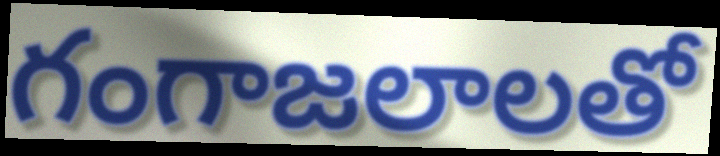
గంగాజలాలతో